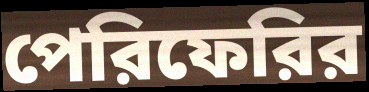
পেরিফেরির